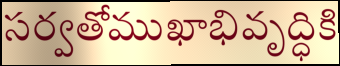
సర్వతోముఖాభివృద్ధికి